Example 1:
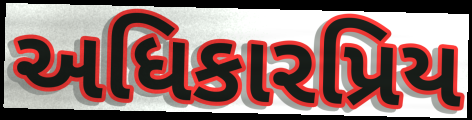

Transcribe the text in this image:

અધિકારપ્રિય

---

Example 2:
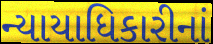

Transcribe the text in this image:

ન્યાયાધિકારીનાં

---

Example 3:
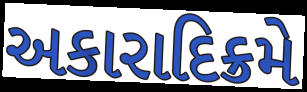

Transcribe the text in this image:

અકારાદિક્રમે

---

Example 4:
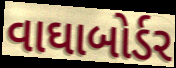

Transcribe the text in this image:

વાઘાબોર્ડર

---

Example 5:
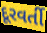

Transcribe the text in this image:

દૂરવર્તી